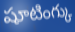
షూటింగ్కు